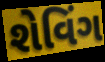
શેવિંગ